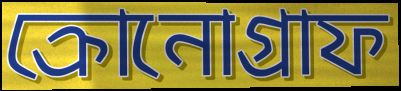
ক্রোনোগ্রাফ